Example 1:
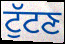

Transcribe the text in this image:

ਟੁੱਟਣ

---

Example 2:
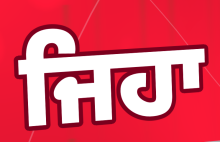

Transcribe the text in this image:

ਜਿਹਾ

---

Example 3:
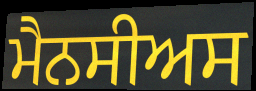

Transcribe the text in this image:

ਮੈਨਸੀਅਸ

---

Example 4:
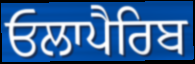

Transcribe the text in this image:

ਓਲਾਪੈਰਿਬ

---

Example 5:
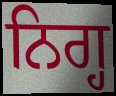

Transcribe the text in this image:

ਨਿਗ੍ਹ